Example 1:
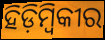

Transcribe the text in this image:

ହିଡ଼ିମ୍ବିକୀର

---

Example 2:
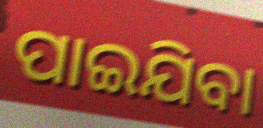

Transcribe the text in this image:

ପାଇଯିବା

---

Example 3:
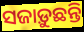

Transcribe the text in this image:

ସଜାଡ଼ୁଛନ୍ତି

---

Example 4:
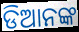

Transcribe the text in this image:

ଡିଆନଙ୍କ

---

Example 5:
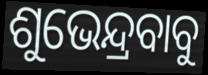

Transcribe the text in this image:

ଶୁଭେନ୍ଦ୍ରବାବୁ